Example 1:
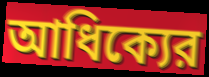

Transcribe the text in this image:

আধিক্যের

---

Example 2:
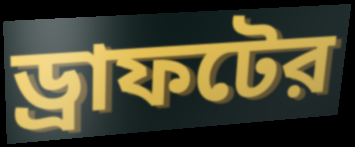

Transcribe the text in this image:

ড্রাফটের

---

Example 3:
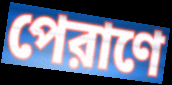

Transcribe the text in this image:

পেরাণে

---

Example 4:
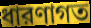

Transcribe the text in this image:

ধারণাগত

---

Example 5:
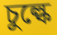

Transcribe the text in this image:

চুল্কে